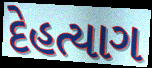
દેહત્યાગ